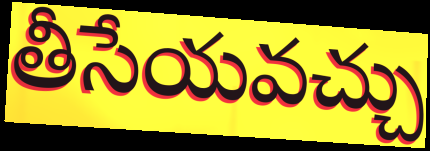
తీసేయవచ్చు